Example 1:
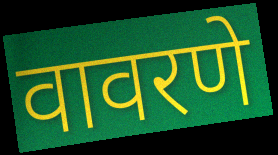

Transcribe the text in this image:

वावरणे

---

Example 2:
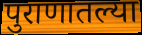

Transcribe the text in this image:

पुराणातल्या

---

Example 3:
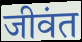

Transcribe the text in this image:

जीवंत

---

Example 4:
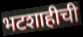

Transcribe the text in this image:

भटशाहीची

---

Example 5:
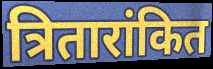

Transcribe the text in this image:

त्रितारांकित